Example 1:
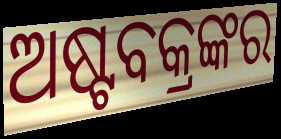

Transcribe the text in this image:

ଅଷ୍ଟବକ୍ରଙ୍କର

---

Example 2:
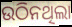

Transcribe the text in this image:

ଉଠିନଥିଲା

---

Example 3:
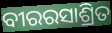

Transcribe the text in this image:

ବୀରରସାଶ୍ରିତ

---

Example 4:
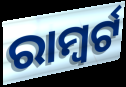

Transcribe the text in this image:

ରାମ୍ବର୍ଟ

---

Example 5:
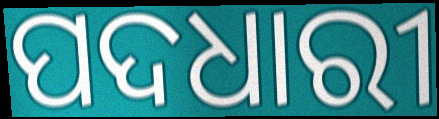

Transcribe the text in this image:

ପଦଧାରୀ